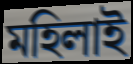
মহিলাই